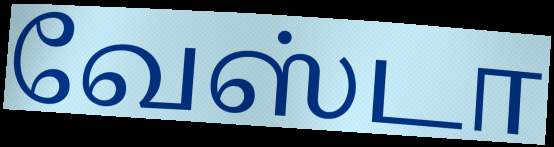
வேஸ்டா